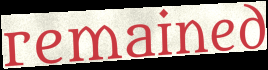
remained